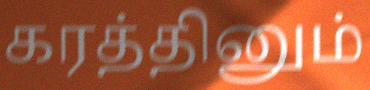
கரத்தினும்